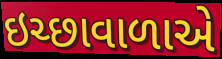
ઇચ્છાવાળાએ